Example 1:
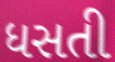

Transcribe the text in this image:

ધસતી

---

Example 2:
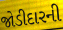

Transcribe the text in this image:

જોડીદારની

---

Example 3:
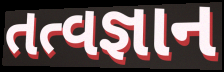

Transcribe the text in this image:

તત્વજ્ઞાન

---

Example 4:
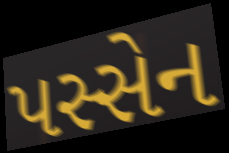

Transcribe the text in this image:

પસ્સેન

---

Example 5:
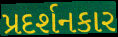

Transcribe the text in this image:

પ્રદર્શનકાર